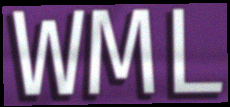
WML